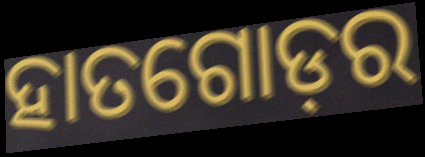
ହାତଗୋଡ଼ର